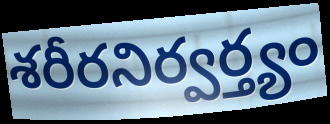
శరీరనిర్వర్త్యం